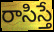
రాసిస్తే